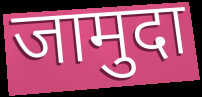
जामुदा